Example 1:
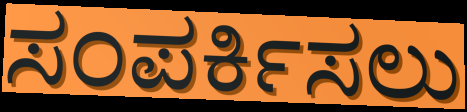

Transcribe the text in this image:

ಸಂಪರ್ಕಿಸಲು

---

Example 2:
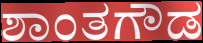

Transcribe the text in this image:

ಶಾಂತಗೌಡ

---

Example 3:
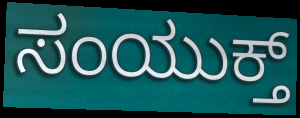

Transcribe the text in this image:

ಸಂಯುಕ್ತ್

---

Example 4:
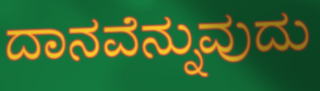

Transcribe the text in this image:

ದಾನವೆನ್ನುವುದು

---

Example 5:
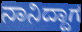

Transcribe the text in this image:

ನಾನಿದ್ದಾಗ